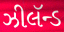
ઝીલૅન્ડ